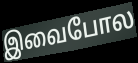
இவைபோல